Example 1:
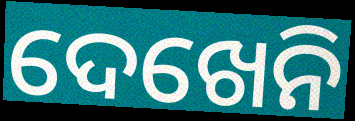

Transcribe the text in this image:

ଦେଖେନି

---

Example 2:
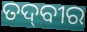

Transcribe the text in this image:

ତଦ୍‌ବୀର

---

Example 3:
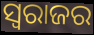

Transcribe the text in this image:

ସ୍ବରାଜର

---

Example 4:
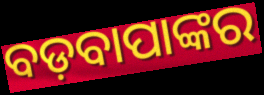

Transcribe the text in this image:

ବଡ଼ବାପାଙ୍କର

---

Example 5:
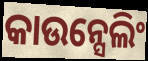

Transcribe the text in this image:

କାଉନ୍ସେଲିଂ